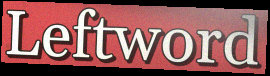
Leftword